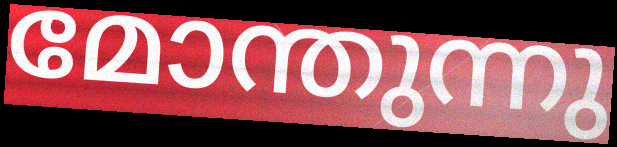
മോന്തുന്നു